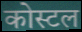
कोस्टल